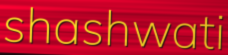
shashwati